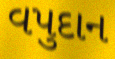
વપુદાન